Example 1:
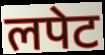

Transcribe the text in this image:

लपेट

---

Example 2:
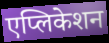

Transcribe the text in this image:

एप्लिकेशन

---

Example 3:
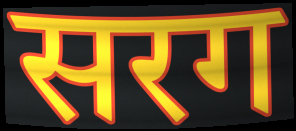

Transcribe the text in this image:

सरग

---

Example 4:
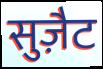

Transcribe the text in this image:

सुज़ैट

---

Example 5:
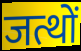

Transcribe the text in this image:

जत्थों